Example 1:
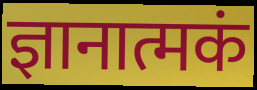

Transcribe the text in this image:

ज्ञानात्मकं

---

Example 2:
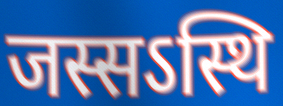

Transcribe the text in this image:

जस्सऽस्थि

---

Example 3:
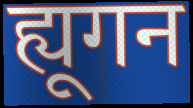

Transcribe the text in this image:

ह्यूगन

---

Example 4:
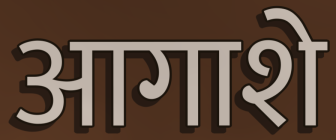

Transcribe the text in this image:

आगाशे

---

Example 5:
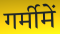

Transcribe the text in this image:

गर्मीमें